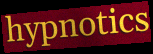
hypnotics